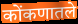
कोंकणातले